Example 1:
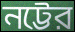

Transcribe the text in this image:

নট্টের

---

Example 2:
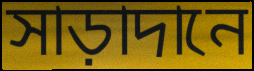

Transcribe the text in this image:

সাড়াদানে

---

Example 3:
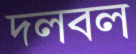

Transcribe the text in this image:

দলবল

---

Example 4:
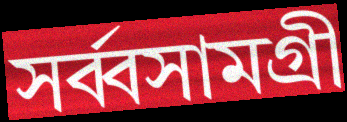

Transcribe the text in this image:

সর্ব্বসামগ্রী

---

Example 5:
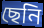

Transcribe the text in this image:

ছেনি